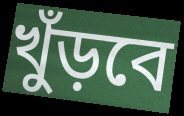
খুঁড়বে